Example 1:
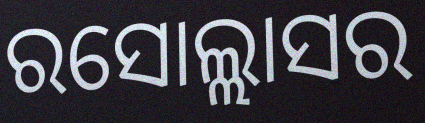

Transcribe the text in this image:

ରସୋଲ୍ଲାସର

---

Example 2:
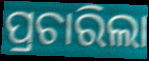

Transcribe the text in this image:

ପ୍ରଚାରିଲା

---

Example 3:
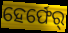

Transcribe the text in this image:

ହେର୍ଫେର୍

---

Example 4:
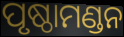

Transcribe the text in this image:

ପୃଷ୍ଠାମଣ୍ଡନ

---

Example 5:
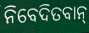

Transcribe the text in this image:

ନିବେଦିତବାନ୍